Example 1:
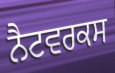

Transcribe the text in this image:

ਨੈਟਵਰਕਸ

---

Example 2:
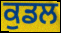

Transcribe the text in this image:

ਕੁਡਲ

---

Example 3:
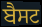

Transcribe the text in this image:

ਬੈਸਟ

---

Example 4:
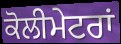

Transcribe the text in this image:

ਕੋਲੀਮੇਟਰਾਂ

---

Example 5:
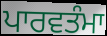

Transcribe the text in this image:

ਪਾਰਵਤੰਮਾ